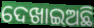
ଦେଖାଇଅଛି